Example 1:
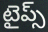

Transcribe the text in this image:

టైప్స్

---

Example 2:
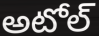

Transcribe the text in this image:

అటోల్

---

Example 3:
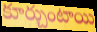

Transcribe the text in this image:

కూర్చుంటాయి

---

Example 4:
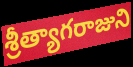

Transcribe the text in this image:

శ్రీత్యాగరాజుని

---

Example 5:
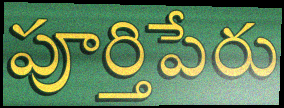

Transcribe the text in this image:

పూర్తిపేరు